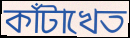
কাঁটাখেত